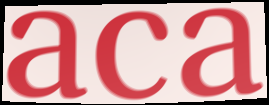
aca